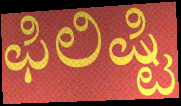
ಫಿಲಿಷ್ಟಿ